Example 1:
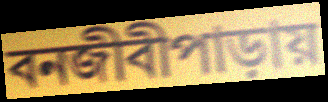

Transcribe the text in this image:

বনজীবীপাড়ায়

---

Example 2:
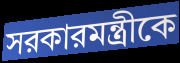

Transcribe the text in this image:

সরকারমন্ত্রীকে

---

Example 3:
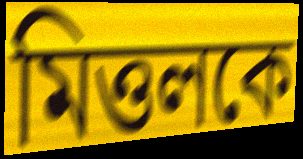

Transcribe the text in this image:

মিত্তলকে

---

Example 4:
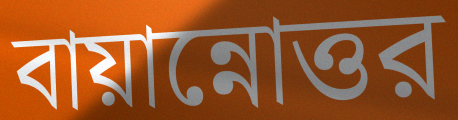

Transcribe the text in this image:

বায়ান্নোত্তর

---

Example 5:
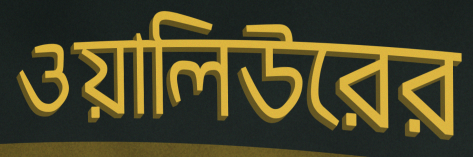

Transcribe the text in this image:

ওয়ালিউরের